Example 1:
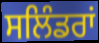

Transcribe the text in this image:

ਸਲਿੰਡਰਾਂ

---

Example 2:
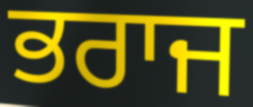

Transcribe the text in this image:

ਭਰਾਜ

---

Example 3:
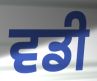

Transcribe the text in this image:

ਵਡੀ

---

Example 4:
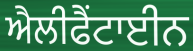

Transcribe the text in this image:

ਐਲੀਫੈਂਟਾਈਨ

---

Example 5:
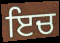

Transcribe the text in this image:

ਇਚ